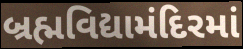
બ્રહ્મવિદ્યામંદિરમાં